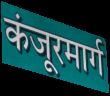
कंजूरमार्ग